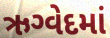
ઋગ્વેદમાં